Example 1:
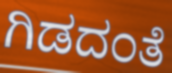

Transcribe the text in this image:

ಗಿಡದಂತೆ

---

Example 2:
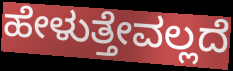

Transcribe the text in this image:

ಹೇಳುತ್ತೇವಲ್ಲದೆ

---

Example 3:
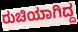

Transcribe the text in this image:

ರುಚಿಯಾಗಿದ್ದ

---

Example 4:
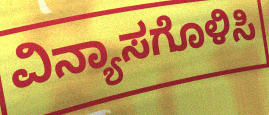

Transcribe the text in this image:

ವಿನ್ಯಾಸಗೊಳಿಸಿ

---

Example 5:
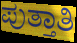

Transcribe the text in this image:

ಪುತ್ತಾತಿ